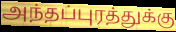
அந்தப்புரத்துக்கு